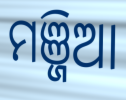
ମଞ୍ଜିଆ